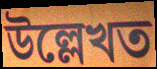
উল্লেখত